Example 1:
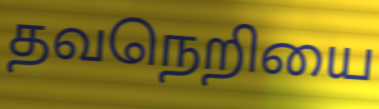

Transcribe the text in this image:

தவநெறியை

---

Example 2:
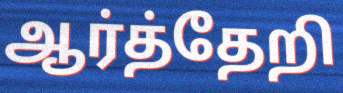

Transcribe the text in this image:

ஆர்த்தேறி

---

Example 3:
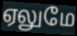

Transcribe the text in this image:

ஏலுமே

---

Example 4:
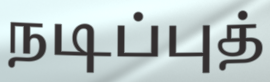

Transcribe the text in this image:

நடிப்புத்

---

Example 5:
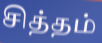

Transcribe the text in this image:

சித்தம்